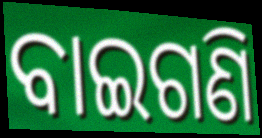
ବାଇଗଣି